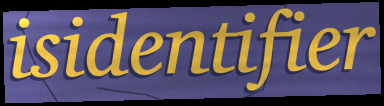
isidentifier